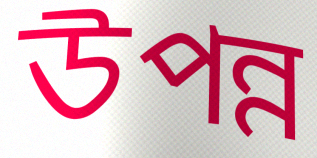
উপন্ন